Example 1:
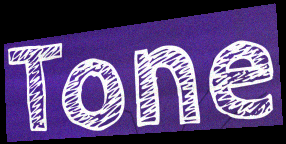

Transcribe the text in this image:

Tone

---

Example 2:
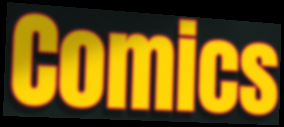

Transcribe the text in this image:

Comics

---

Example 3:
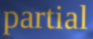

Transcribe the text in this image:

partial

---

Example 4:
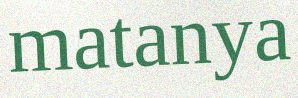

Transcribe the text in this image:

matanya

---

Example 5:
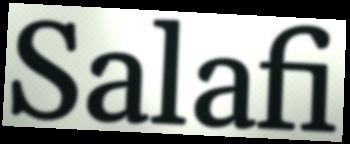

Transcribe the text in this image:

Salafi